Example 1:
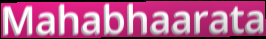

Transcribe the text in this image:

Mahabhaarata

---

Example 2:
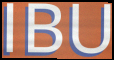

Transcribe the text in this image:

IBU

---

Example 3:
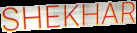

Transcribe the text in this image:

SHEKHAR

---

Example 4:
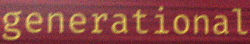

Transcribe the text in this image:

generational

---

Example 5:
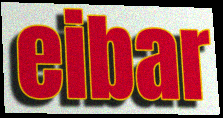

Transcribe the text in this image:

eibar